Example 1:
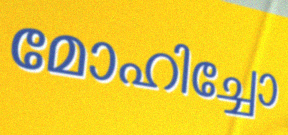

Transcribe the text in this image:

മോഹിച്ചോ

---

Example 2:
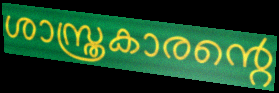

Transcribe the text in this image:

ശാസ്ത്രകാരന്റെ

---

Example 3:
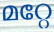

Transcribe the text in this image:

മറ്റേ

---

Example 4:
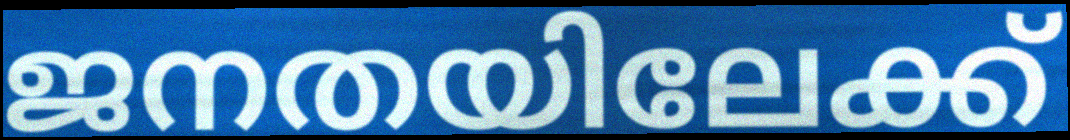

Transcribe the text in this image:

ജനതയിലേക്ക്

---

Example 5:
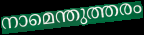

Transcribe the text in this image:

നാമെന്തുത്തരം